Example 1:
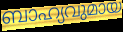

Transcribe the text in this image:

ബാഹ്യവുമായ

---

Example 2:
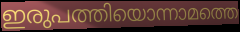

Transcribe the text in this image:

ഇരുപത്തിയൊന്നാമത്തെ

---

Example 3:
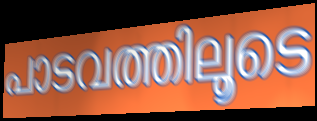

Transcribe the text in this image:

പാടവത്തിലൂടെ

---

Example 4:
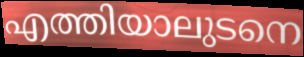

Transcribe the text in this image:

എത്തിയാലുടനെ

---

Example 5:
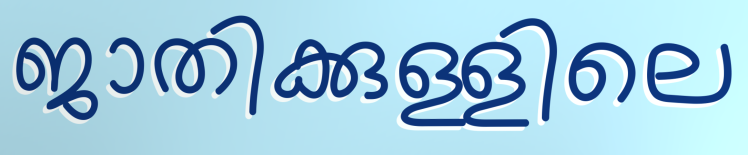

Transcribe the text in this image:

ജാതിക്കുള്ളിലെ